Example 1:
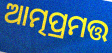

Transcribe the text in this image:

ଆତ୍ମପ୍ରମତ୍ତ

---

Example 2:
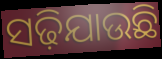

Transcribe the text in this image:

ସଢ଼ିଯାଉଛି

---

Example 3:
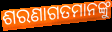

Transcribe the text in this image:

ଶରଣାଗତମାନଙ୍କୁ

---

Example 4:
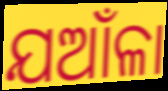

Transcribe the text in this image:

ଯଆଁଳା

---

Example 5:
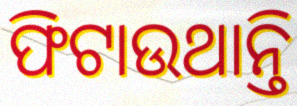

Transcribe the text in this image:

ଫିଟାଉଥାନ୍ତି